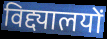
विद्द्यालयों